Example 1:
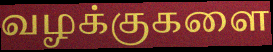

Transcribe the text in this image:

வழக்குகளை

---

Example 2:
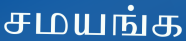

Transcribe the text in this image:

சமயங்க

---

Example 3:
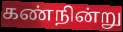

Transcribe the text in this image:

கண்நின்று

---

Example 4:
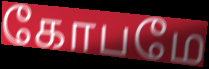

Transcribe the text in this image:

கோபமே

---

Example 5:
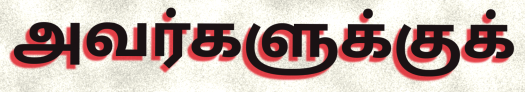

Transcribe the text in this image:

அவர்களுக்குக்